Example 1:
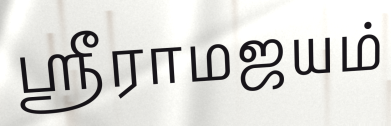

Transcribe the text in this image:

ஸ்ரீராமஜயம்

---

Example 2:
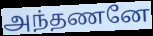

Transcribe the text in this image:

அந்தணனே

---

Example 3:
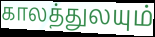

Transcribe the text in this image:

காலத்துலயும்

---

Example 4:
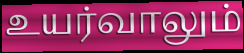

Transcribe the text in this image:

உயர்வாலும்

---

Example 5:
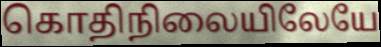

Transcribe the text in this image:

கொதிநிலையிலேயே